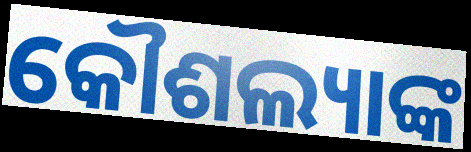
କୌଶଲ୍ୟାଙ୍କ